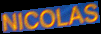
NICOLAS